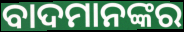
ବାଦମାନଙ୍କର